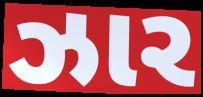
ઝાર